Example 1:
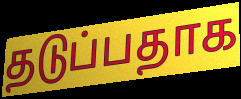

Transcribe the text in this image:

தடுப்பதாக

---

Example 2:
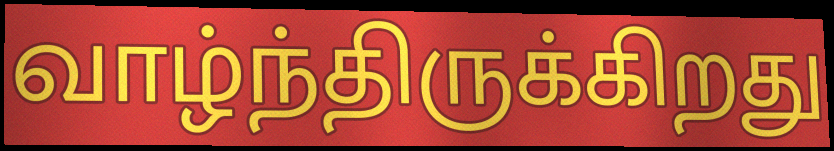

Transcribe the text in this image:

வாழ்ந்திருக்கிறது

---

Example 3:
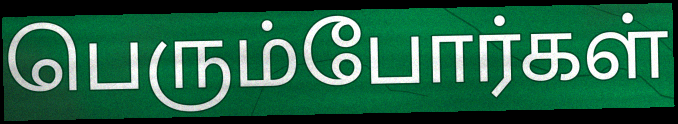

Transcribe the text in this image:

பெரும்போர்கள்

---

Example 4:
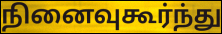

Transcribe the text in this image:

நினைவுகூர்ந்து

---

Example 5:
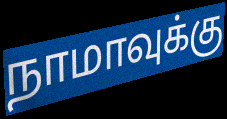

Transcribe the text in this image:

நாமாவுக்கு